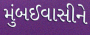
મુંબઈવાસીને